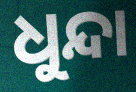
ଧୁନ୍ଦା